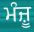
ਮੰਜ਼ੂ